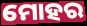
ମୋହର